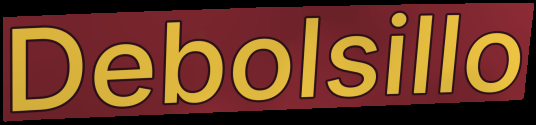
Debolsillo